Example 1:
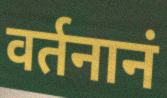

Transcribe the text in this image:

वर्तनानं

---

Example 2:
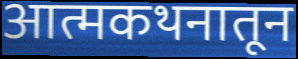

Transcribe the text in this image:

आत्मकथनातून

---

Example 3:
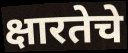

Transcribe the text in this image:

क्षारतेचे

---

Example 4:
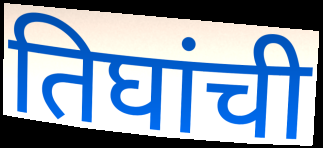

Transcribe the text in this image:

तिघांची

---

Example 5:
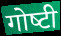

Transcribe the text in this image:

गोष्‍टी